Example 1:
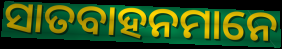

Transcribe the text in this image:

ସାତବାହନମାନେ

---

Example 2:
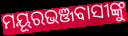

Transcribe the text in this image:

ମୟୂରଭଞ୍ଜବାସୀଙ୍କୁ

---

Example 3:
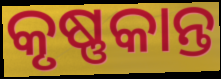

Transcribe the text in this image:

କୃଷ୍ଣକାନ୍ତ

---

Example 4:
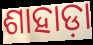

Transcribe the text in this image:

ଶାହାଡ଼ା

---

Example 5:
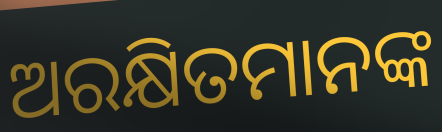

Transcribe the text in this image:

ଅରକ୍ଷିତମାନଙ୍କ